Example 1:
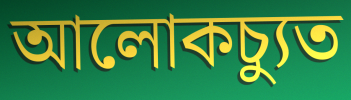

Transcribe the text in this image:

আলোকচ্যুত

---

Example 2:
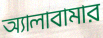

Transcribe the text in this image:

অ্যালাবামার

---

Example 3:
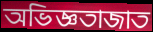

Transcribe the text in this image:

অভিজ্ঞতাজাত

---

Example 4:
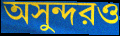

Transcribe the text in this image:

অসুন্দরও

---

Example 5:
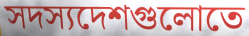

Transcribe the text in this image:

সদস্যদেশগুলোতে